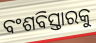
ବଂଶବିସ୍ତାରକୁ